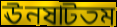
ঊনষাটতম